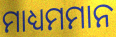
ମାଧ୍ୟମମାନ